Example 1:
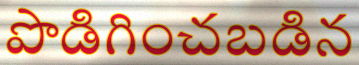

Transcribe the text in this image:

పొడిగించబడిన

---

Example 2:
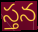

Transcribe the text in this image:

స్తన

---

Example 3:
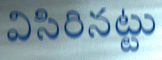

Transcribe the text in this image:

విసిరినట్టు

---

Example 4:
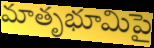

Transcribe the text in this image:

మాతృభూమిపై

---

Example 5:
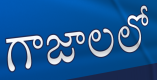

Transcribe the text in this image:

గాజాలలో